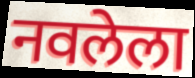
नवलेला